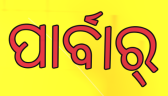
ପାର୍ବାର୍